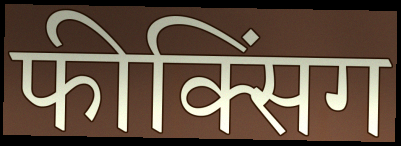
फीक्सिंग